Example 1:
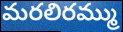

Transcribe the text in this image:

మరలిరమ్ము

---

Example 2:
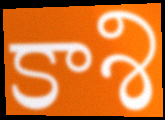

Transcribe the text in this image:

కాశి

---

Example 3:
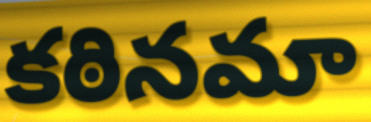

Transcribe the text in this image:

కఠినమా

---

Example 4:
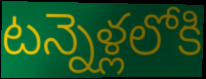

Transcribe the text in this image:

టన్నెళ్లలోకి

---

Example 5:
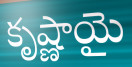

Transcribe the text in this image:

కృష్ణాయై